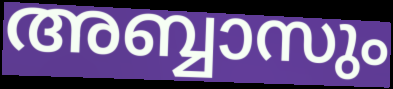
അബ്ബാസും